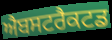
ਐਬਸਟਰੈਕਟਡ